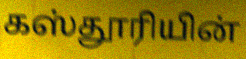
கஸ்தூரியின்